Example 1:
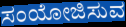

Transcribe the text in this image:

ಸಂಯೋಜಿಸುವ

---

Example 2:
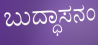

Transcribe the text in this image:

ಬುದ್ಧಾಸನಂ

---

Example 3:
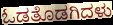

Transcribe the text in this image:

ಓಡತೊಡಗಿದಳು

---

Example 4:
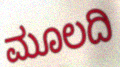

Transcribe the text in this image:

ಮೂಲದಿ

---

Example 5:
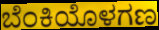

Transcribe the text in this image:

ಬೆಂಕಿಯೊಳಗಣ